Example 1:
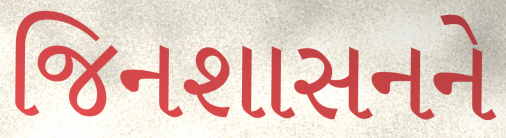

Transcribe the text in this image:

જિનશાસનને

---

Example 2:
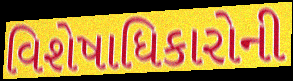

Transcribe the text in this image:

વિશેષાધિકારોની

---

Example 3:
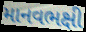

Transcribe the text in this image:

માનવભક્ષી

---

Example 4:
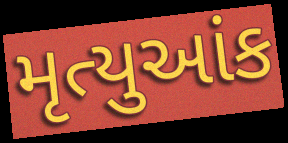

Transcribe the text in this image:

મૃત્યુઆંક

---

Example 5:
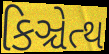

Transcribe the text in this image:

કિઞ્ચેત્થ